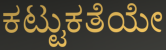
ಕಟ್ಟುಕತೆಯೇ